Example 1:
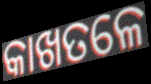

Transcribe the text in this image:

କାଖତଳେ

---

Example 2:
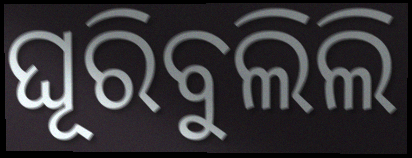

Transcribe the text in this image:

ଘୂରିବୁଲିଲି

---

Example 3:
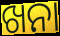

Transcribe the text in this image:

ଖନା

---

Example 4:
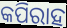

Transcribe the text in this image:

କପିରାହ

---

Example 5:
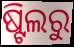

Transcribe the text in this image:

ଷ୍ଟିଲରୁ